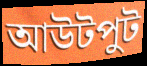
আউটপুট